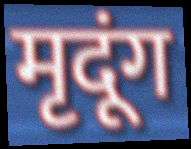
मृदूंग